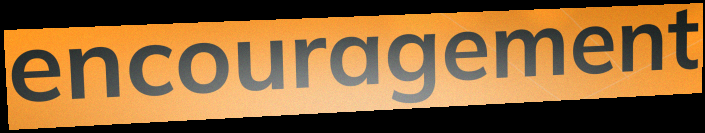
encouragement